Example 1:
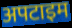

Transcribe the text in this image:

अपटाइम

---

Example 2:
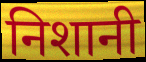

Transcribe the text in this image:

निशानी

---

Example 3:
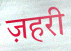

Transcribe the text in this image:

ज़हरी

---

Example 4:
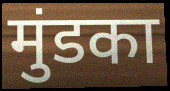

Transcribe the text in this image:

मुंडका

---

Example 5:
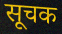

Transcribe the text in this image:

सूचक